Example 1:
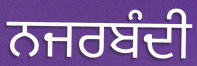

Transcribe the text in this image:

ਨਜਰਬੰਦੀ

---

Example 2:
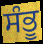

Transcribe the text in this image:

ਸੰਭੂ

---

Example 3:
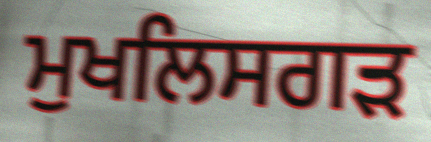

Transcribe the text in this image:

ਮੁਖਲਿਸਗੜ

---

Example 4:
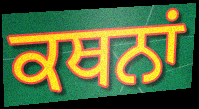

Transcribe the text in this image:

ਕਥਨਾਂ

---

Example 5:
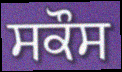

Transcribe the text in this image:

ਸਕੌਸ